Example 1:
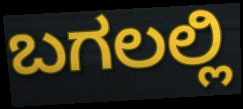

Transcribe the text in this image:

ಬಗಲಲ್ಲಿ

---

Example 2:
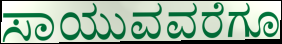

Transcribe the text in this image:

ಸಾಯುವವರೆಗೂ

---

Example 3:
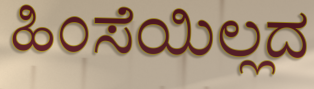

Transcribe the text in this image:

ಹಿಂಸೆಯಿಲ್ಲದ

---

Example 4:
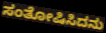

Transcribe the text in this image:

ಸಂತೋಷಿಸಿದನು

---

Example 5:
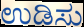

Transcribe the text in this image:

ಉಡಿಸು